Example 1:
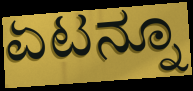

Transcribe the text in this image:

ಏಟನ್ನೂ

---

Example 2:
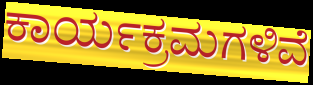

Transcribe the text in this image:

ಕಾರ್ಯಕ್ರಮಗಳಿವೆ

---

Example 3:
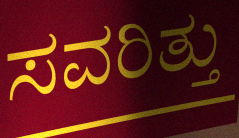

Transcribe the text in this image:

ಸವರಿತ್ತು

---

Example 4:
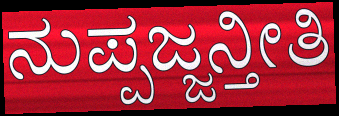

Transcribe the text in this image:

ನುಪ್ಪಜ್ಜನ್ತೀತಿ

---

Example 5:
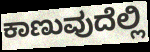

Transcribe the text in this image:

ಕಾಣುವುದೆಲ್ಲಿ